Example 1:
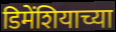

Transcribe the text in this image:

डिमेंशियाच्या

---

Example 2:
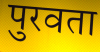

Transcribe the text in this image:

पुरवता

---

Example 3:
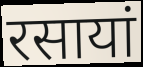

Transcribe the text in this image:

रसायां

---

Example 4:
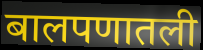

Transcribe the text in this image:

बालपणातली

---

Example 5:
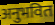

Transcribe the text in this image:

अनुभवित